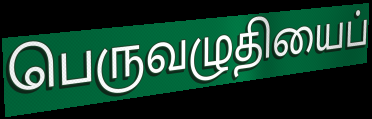
பெருவழுதியைப்